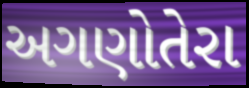
અગણોતેરા